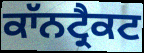
ਕਾੱਨਟ੍ਰੈਕਟ